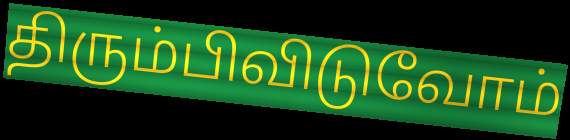
திரும்பிவிடுவோம்